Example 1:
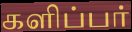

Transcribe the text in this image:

களிப்பர்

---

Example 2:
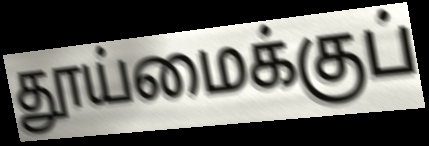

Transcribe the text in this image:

தூய்மைக்குப்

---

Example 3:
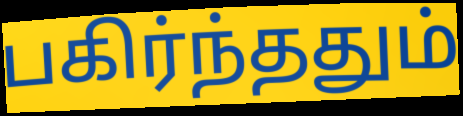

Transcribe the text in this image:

பகிர்ந்ததும்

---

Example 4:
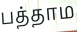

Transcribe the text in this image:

பத்தாம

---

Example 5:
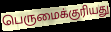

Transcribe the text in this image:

பெருமைக்குரியது